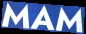
MAM